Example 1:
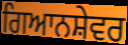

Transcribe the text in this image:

ਗਿਆਨਸ਼ੇਵਰ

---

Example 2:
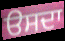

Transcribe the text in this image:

ੳਸਦਾ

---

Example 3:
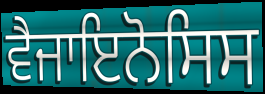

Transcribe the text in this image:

ਵੈਜਾਇਨੋਸਿਸ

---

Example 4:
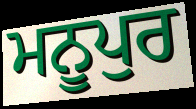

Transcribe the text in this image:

ਮਨੂਪੁਰ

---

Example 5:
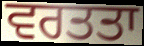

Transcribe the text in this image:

ਵਰਤਤਾ